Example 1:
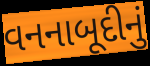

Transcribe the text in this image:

વનનાબૂદીનું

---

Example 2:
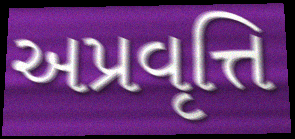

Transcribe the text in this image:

અપ્રવૃત્તિ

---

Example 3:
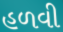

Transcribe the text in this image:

હળવી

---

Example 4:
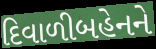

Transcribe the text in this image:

દિવાળીબહેનને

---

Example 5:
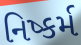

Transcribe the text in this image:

નિષ્કર્મ